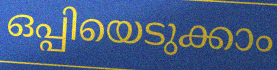
ഒപ്പിയെടുക്കാം